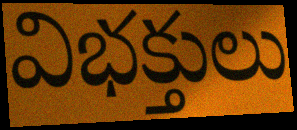
విభక్తులు